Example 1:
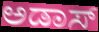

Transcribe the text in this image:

ಅಡಾಸ್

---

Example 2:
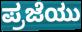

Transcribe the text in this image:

ಪ್ರಜೆಯು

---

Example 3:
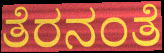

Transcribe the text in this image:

ತೆರನಂತೆ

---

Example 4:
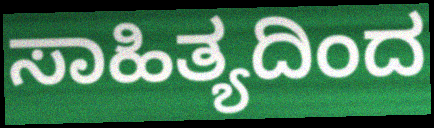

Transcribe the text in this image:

ಸಾಹಿತ್ಯದಿಂದ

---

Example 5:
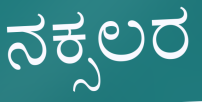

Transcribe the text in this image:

ನಕ್ಸಲರ